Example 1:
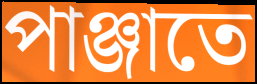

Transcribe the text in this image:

পাঞ্জাতে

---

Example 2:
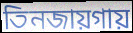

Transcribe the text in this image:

তিনজায়গায়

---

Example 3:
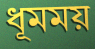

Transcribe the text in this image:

ধূমময়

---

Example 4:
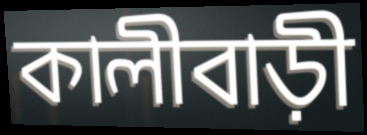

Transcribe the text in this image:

কালীবাড়ী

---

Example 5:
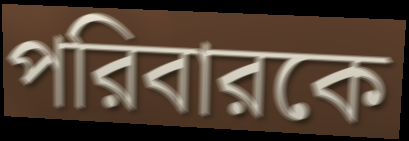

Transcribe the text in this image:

পরিবারকে